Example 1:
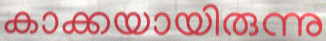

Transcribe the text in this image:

കാക്കയായിരുന്നു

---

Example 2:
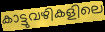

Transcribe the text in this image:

കാട്ടുവഴികളിലെ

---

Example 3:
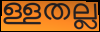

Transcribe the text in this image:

ള്ളതല്ല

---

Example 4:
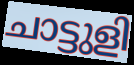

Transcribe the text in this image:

ചാട്ടുളി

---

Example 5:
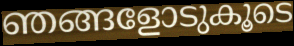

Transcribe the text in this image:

ഞങ്ങളോടുകൂടെ